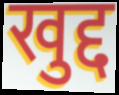
खुद्द